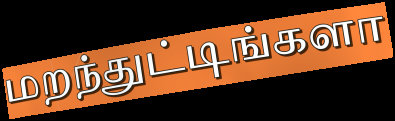
மறந்துட்டிங்களா